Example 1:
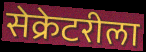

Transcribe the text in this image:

सेक्रेटरीला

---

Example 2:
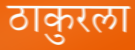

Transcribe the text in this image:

ठाकुरला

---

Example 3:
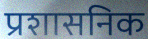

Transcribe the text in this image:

प्रशासनिक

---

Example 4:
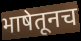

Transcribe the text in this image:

भाषेतूनच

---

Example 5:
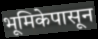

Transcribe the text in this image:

भूमिकेपासून